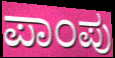
ಪಾಂಪು